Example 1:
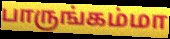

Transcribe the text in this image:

பாருங்கம்மா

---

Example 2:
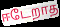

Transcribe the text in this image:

ஈடேறாத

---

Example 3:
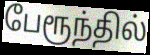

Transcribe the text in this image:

பேரூந்தில்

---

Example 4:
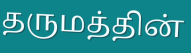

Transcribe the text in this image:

தருமத்தின்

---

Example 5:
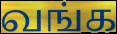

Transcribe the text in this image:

வங்க